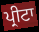
ਪ੍ਰੀਟਾ